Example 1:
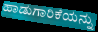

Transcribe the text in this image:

ಹಾಡುಗಾರಿಕೆಯನ್ನು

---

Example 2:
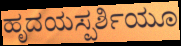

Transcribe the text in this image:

ಹೃದಯಸ್ಪರ್ಶಿಯೂ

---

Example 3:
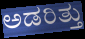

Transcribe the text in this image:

ಅಡರಿತ್ತು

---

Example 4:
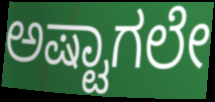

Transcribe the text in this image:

ಅಷ್ಟಾಗಲೇ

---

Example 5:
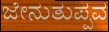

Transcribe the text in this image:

ಜೇನುತುಪ್ಪವ